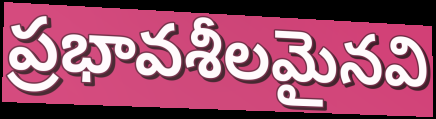
ప్రభావశీలమైనవి